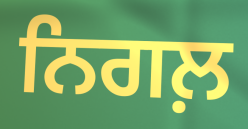
ਨਿਗਲ਼